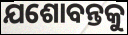
ଯଶୋବନ୍ତକୁ